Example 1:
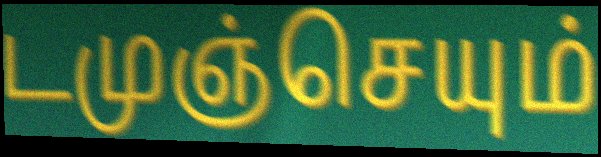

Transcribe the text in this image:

டமுஞ்செயும்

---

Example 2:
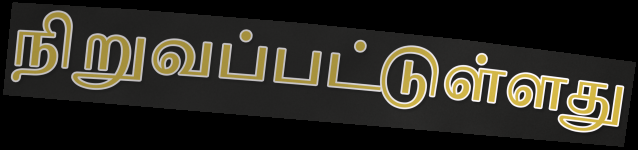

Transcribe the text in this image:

நிறுவப்பட்டுள்ளது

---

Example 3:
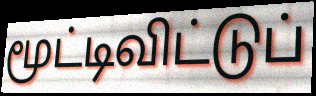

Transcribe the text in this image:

மூட்டிவிட்டுப்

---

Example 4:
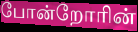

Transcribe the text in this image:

போன்றோரின்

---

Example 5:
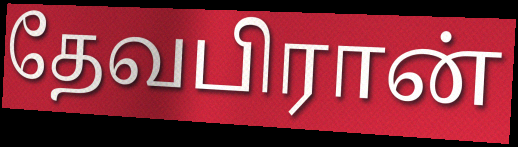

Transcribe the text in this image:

தேவபிரான்